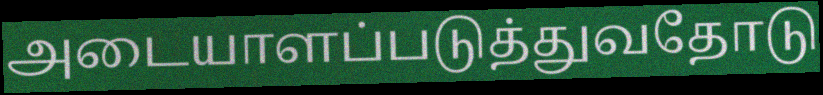
அடையாளப்படுத்துவதோடு